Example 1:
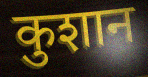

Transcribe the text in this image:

कुशान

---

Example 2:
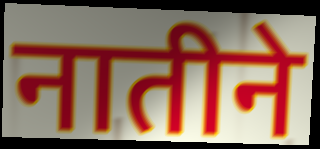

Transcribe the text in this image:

नातीने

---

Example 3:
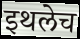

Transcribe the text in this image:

इथलेच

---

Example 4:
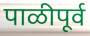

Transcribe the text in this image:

पाळीपूर्व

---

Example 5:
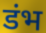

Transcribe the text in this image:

डंभ